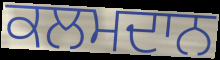
ਕਲਮਦਾਨ